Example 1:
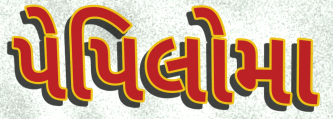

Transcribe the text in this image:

પેપિલોમા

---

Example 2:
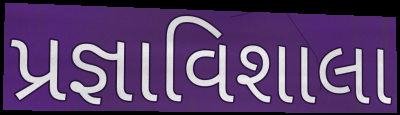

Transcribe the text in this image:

પ્રજ્ઞાવિશાલા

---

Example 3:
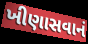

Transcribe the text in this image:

ખીણાસવાનં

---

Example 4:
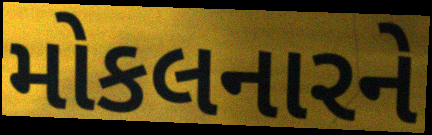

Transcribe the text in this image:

મોકલનારને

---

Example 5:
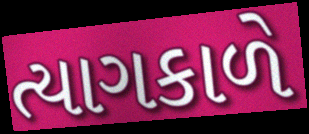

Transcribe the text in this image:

ત્યાગકાળે